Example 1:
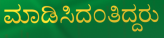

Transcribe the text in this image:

ಮಾಡಿಸಿದಂತಿದ್ದರು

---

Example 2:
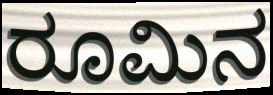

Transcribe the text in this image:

ರೂಮಿನ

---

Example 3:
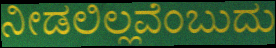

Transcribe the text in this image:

ನೀಡಲಿಲ್ಲವೆಂಬುದು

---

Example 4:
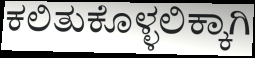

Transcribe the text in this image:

ಕಲಿತುಕೊಳ್ಳಲಿಕ್ಕಾಗಿ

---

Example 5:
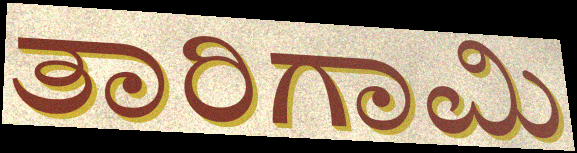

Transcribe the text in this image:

ತಾರಿಗಾಮಿ